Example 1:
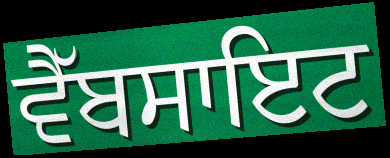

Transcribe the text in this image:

ਵੈੱਬਸਾਇਟ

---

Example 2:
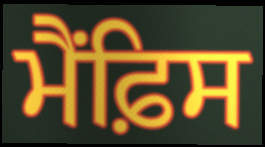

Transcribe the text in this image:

ਮੈਂਫ਼ਿਸ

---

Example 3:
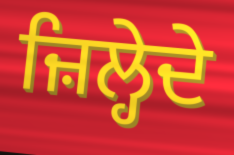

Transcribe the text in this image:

ਜ਼ਿਲ੍ਹੇਦੇ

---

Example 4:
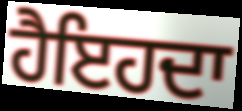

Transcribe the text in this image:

ਹੈਇਹਦਾ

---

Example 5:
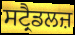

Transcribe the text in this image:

ਸਟ੍ਰੈਡਲਜ਼